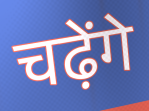
चढ़ेंगे